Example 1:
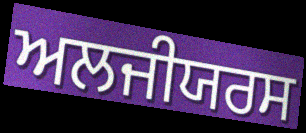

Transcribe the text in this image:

ਅਲਜੀਯਰਸ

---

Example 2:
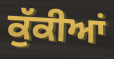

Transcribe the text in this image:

ਕੁੱਕੀਆਂ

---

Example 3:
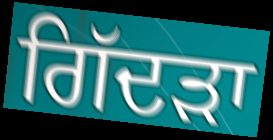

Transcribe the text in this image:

ਗਿੱਦੜਾ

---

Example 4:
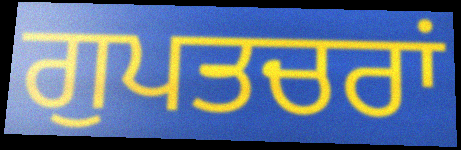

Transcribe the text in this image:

ਗੁਪਤਚਰਾਂ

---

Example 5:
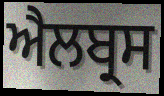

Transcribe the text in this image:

ਐਲਬ੍ਰਸ